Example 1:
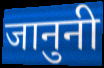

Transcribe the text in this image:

जानुनी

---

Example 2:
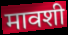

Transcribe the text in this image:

मावशी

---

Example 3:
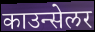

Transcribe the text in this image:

काउन्सेलर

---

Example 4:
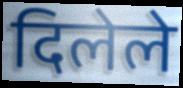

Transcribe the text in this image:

दिलेले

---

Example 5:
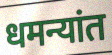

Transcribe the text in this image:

धमन्यांत